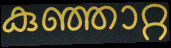
കുഞ്ഞാറ്റ